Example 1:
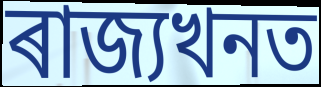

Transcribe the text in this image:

ৰাজ্যখনত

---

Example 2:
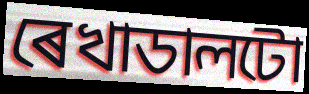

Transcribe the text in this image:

ৰেখাডালটো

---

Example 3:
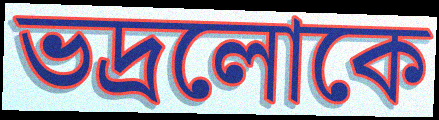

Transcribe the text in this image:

ভদ্ৰলোকে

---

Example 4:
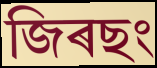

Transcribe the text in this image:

জিৰছং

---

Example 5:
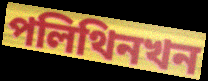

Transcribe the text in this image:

পলিথিনখন